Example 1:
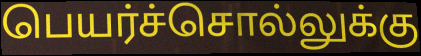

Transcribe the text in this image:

பெயர்ச்சொல்லுக்கு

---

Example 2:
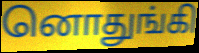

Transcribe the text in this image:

னொதுங்கி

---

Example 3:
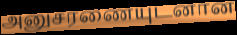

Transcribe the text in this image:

அனுசரணையுடனான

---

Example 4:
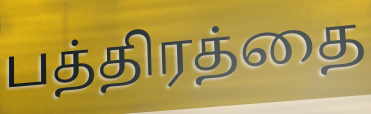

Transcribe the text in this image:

பத்திரத்தை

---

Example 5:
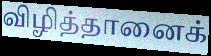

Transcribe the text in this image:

விழித்தானைக்